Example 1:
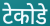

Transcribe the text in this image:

टेकोडे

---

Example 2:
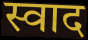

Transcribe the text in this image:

स्वाद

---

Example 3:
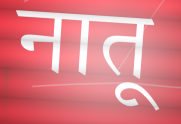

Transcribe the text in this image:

नातू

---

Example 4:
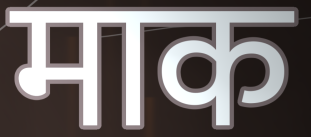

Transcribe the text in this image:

माक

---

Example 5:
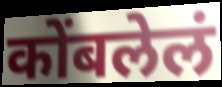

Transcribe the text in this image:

कोंबलेलं